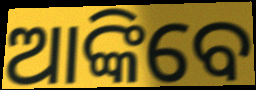
ଆଙ୍କିବେ